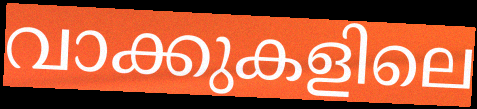
വാക്കുകളിലെ